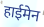
हाईमेन